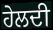
ਹੇਲਦੀ